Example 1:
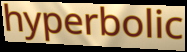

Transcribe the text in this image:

hyperbolic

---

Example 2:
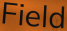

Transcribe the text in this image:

Field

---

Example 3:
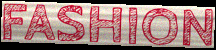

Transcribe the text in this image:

FASHION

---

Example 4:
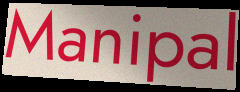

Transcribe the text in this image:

Manipal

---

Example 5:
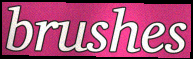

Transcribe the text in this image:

brushes